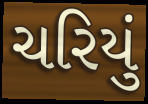
ચરિયું